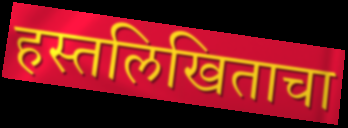
हस्तलिखिताचा